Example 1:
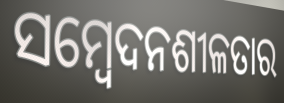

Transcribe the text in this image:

ସମ୍ୱେଦନଶୀଳତାର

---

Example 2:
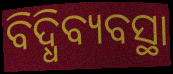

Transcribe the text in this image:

ବିଦ୍ଧିବ୍ୟବସ୍ଥା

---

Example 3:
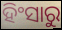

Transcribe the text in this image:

ହିଂସାରୁ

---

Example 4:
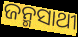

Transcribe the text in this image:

ଜନ୍ମସାଥୀ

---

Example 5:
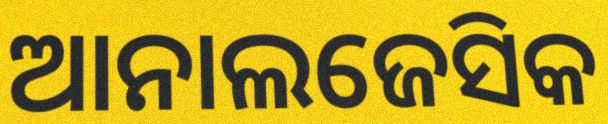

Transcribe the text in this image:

ଆନାଲଜେସିକ